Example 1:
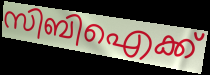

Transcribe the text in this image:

സിബിഐക്ക്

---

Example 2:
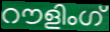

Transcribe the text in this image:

റൗളിംഗ്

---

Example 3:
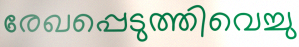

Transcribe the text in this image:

രേഖപ്പെടുത്തിവെച്ചു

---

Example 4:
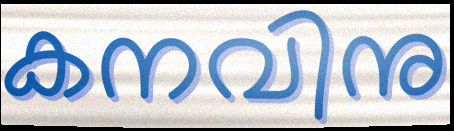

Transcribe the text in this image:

കനവിനു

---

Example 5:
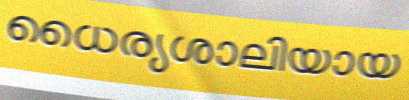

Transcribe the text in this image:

ധൈര്യശാലിയായ